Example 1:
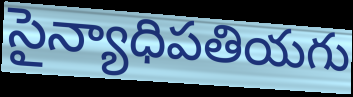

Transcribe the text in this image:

సైన్యాధిపతియగు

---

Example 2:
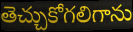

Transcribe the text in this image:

తెచ్చుకోగలిగాను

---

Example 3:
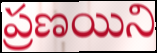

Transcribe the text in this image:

ప్రణయిని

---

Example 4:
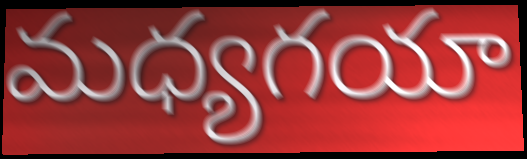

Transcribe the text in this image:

మధ్యగయా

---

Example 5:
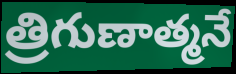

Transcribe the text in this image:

త్రిగుణాత్మనే